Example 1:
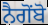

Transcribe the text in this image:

ਨੈਗੋਂਬੋ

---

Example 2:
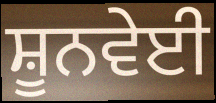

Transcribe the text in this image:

ਸ਼ੂਨਵੇਈ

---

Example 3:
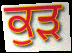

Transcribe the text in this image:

ਕੁੜ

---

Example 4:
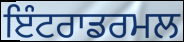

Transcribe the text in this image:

ਇੰਟਰਾਡਰਮਲ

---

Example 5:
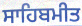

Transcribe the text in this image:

ਸਾਹਿਬਮੀਤ